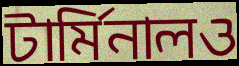
টার্মিনালও